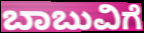
ಬಾಬುವಿಗೆ